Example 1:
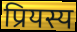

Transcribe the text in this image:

प्रियस्य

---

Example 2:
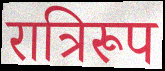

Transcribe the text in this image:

रात्रिरूप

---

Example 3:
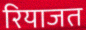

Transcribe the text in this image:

रियाजत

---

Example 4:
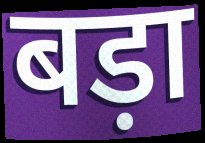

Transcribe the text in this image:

बड़ा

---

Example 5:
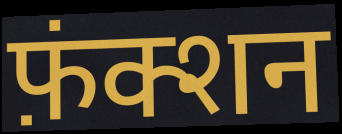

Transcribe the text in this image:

फ़ंक्शन